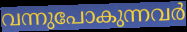
വന്നുപോകുന്നവർ